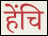
हेंचि